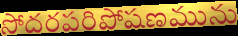
సోదరపరిపోషణమును